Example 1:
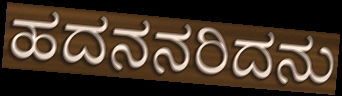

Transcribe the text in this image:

ಹದನನರಿದನು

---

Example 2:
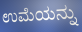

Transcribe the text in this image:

ಉಮೆಯನ್ನು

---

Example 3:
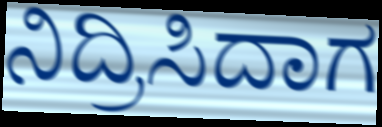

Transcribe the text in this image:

ನಿದ್ರಿಸಿದಾಗ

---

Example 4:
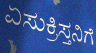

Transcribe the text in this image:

ಏಸುಕ್ರಿಸ್ತನಿಗೆ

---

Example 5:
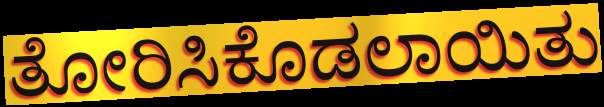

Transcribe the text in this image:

ತೋರಿಸಿಕೊಡಲಾಯಿತು